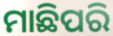
ମାଛିପରି